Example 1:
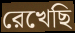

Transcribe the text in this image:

রেখেছি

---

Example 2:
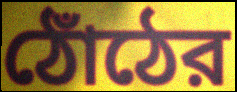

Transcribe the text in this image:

ঠোঁঠের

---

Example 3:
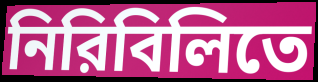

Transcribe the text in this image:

নিরিবিলিতে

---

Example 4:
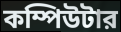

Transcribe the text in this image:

কম্পিউটার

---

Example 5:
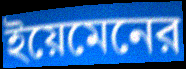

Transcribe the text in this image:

ইয়েমেনের